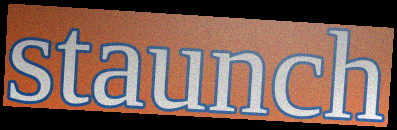
staunch